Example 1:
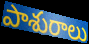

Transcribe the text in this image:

పాశురాలు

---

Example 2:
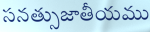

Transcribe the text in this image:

సనత్సుజాతీయము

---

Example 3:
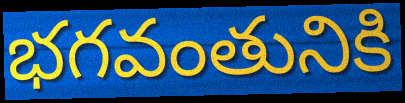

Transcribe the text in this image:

భగవంతునికి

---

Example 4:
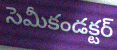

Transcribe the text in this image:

సెమీకండక్టర్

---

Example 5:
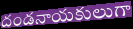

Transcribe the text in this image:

దండనాయకులుగా